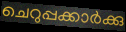
ചെറുപ്പക്കാർക്കു